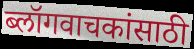
ब्लॉगवाचकांसाठी